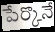
పేర్కొనే